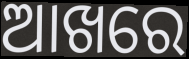
ଆଖରେ